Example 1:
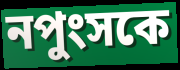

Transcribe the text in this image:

নপুংসকে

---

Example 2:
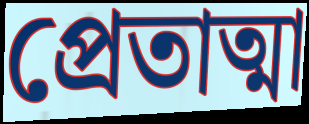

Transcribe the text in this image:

প্রেতাত্মা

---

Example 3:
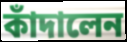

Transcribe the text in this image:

কাঁদালেন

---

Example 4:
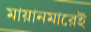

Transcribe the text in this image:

মায়ানমারেই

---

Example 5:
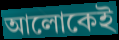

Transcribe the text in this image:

আলোকেই